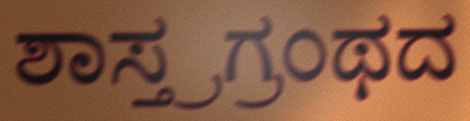
ಶಾಸ್ತ್ರಗ್ರಂಥದ